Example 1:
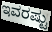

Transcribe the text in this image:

ಇವರಷ್ಟು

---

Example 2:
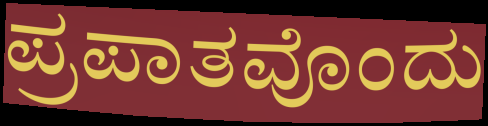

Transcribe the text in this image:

ಪ್ರಪಾತವೊಂದು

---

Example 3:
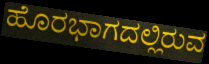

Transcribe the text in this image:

ಹೊರಭಾಗದಲ್ಲಿರುವ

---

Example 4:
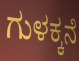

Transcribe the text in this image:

ಗುಳಕ್ಕನೆ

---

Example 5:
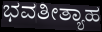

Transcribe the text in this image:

ಭವತೀತ್ಯಾಹ